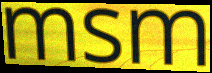
msm